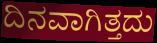
ದಿನವಾಗಿತ್ತದು